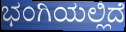
ಭಂಗಿಯಲ್ಲಿದೆ